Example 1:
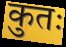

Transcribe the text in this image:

कुतः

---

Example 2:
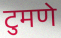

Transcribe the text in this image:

टुमणे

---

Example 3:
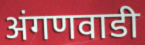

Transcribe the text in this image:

अंगणवाडी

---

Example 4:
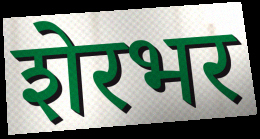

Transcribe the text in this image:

शेरभर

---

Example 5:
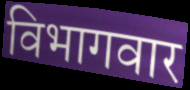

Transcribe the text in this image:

विभागवार